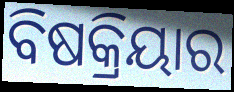
ବିଷକ୍ରିୟାର